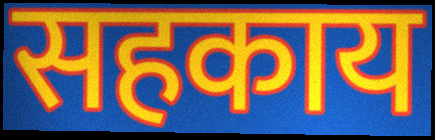
सहकाय